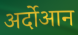
अर्दोआन